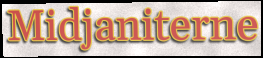
Midjaniterne